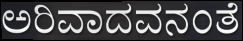
ಅರಿವಾದವನಂತೆ